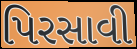
પિરસાવી